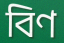
বিণ